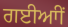
ਗਈਆੀਂ